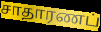
சாதாரணப்